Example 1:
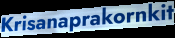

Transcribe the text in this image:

Krisanaprakornkit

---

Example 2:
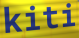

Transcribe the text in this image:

kiti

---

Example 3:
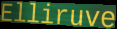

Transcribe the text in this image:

Elliruve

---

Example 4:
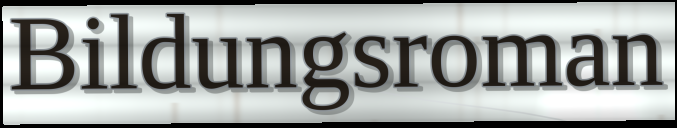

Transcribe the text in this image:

Bildungsroman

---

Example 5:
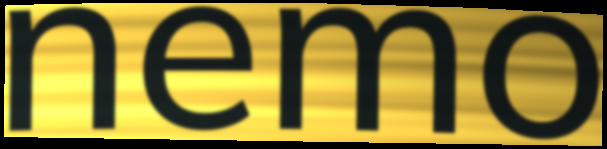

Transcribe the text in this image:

nemo